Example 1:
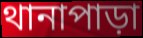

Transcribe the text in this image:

থানাপাড়া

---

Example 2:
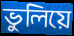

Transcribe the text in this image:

ভুলিয়ে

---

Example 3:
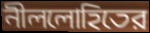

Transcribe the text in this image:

নীললোহিতের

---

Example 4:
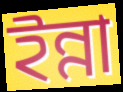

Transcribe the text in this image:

ইন্না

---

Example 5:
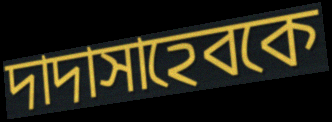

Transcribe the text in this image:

দাদাসাহেবকে